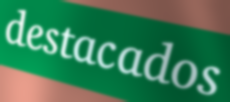
destacados